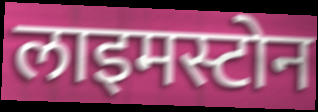
लाइमस्टोन